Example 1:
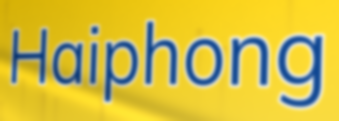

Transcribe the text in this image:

Haiphong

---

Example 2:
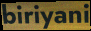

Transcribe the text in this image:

biriyani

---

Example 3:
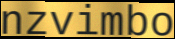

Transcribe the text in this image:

nzvimbo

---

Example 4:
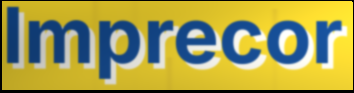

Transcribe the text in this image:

Imprecor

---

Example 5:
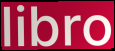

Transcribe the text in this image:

libro